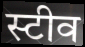
स्‍टीव